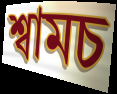
শ্বামচ